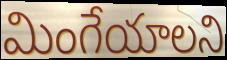
మింగేయాలని